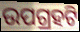
ଉପଗ୍ରହଟି